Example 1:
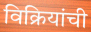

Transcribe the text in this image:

विक्रियांची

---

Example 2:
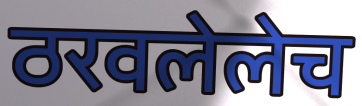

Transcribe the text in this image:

ठरवलेलेच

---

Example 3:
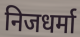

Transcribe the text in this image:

निजधर्मा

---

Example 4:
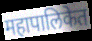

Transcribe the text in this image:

महापालिकेत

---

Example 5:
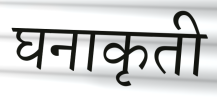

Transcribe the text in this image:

घनाकृती